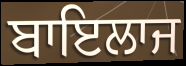
ਬਾਇਲਾਜ